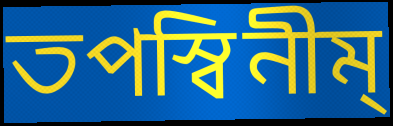
তপস্বিনীম্